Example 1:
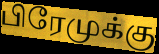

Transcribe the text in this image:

பிரேமுக்கு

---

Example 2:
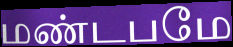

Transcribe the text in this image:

மண்டபமே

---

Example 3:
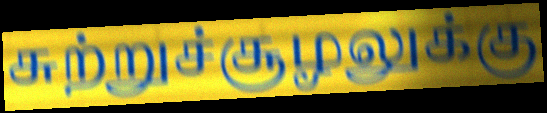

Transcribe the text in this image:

சுற்றுச்சூழலுக்கு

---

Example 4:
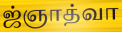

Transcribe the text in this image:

ஜ்ஞாத்வா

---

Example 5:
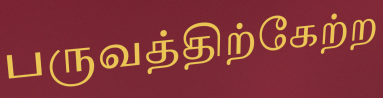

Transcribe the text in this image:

பருவத்திற்கேற்ற